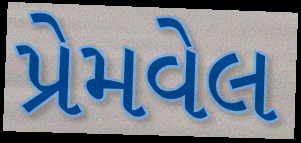
પ્રેમવેલ